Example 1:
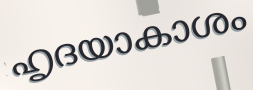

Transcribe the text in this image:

ഹൃദയാകാശം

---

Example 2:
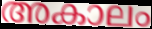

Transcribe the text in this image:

അകാലം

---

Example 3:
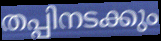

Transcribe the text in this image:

തപ്പിനടക്കും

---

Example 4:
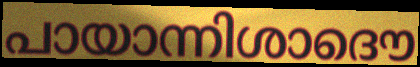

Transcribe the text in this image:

പായാന്നിശാദൌ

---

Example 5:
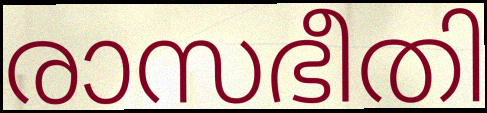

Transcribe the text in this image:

രാസഭീതി